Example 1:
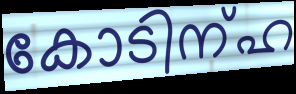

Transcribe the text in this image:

കോടിന്ഹ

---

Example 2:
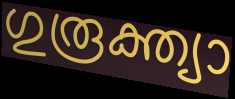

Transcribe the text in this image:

ഗുരൂക്ത്യാ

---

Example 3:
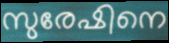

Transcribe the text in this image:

സുരേഷിനെ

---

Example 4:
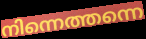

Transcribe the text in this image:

നിന്നെത്തന്നെ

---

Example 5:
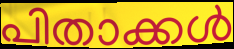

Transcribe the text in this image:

പിതാക്കൾ